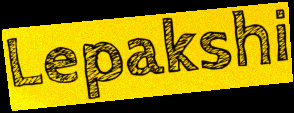
Lepakshi